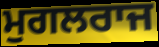
ਮੁਗਲਰਾਜ